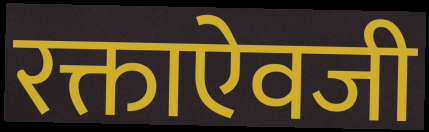
रक्ताऐवजी